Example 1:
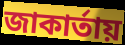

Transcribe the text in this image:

জাকার্তায়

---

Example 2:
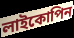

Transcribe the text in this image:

লাইকোপিন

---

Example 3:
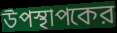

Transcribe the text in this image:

উপস্থাপকের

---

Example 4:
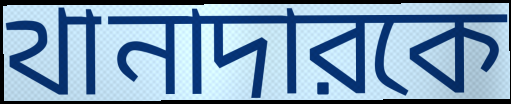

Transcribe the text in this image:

থানাদারকে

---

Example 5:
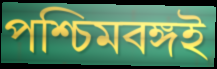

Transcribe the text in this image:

পশ্চিমবঙ্গই